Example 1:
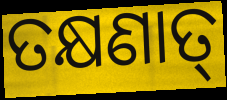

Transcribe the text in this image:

ତକ୍ଷଣାତ୍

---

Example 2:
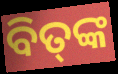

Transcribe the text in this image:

ବିତ୍‌ଙ୍କ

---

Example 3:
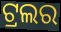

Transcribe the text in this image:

ଟ୍ରଲର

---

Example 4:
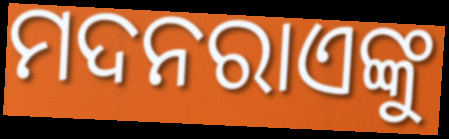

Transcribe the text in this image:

ମଦନରାଏଙ୍କୁ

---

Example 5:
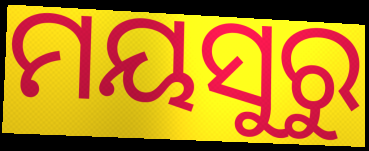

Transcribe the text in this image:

ମୟସୁରୁ